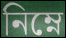
নিম্নে